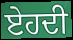
ਏਹਦੀ